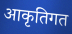
आकृतिगत